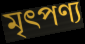
মৃৎপণ্য